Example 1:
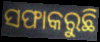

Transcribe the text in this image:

ସଫାକରୁଛି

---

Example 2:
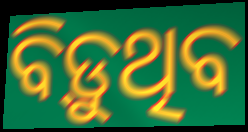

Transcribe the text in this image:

ବିଡ଼ୁଥିବ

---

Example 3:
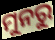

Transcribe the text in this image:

ମୁନରୁ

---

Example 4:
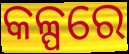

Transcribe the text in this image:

କଳ୍ପରେ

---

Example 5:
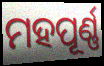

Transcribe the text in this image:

ମହପୂର୍ଣ୍ଣ